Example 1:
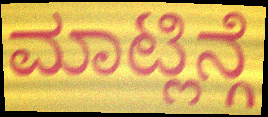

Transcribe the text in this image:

ಮಾಟ್ಲಿನ್ಗೆ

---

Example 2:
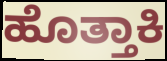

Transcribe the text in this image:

ಹೊತ್ತಾಕಿ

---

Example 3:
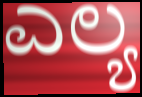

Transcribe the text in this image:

ಎಲ್ಯ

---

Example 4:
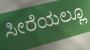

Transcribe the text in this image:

ಸೀರೆಯಲ್ಲೂ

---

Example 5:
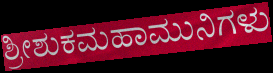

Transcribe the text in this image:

ಶ್ರೀಶುಕಮಹಾಮುನಿಗಳು